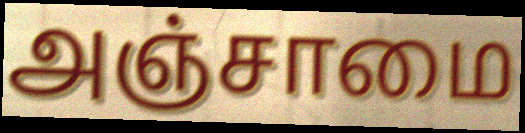
அஞ்சாமை